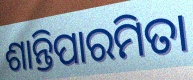
ଶାନ୍ତିପାରମିତା